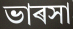
ভাৰসা